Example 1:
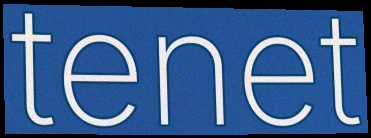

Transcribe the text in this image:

tenet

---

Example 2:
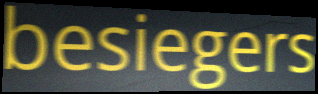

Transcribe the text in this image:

besiegers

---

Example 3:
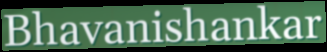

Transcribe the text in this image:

Bhavanishankar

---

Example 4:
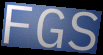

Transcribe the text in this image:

FGS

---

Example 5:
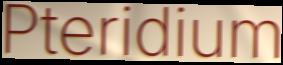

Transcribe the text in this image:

Pteridium